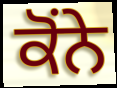
ਕੋਂਨੇ